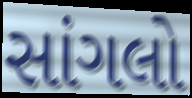
સાંગલો